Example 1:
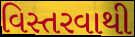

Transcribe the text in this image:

વિસ્તરવાથી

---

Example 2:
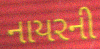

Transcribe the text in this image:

નાયરની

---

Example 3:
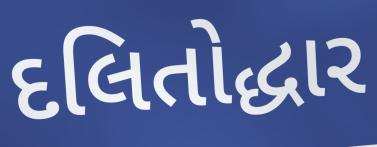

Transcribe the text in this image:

દલિતોદ્ધાર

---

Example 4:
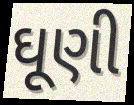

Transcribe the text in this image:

ઘૂણી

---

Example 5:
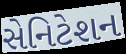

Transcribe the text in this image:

સેનિટેશન